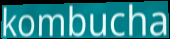
kombucha